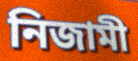
নিজামী